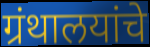
ग्रंथालयांचे